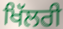
ਖਿੱਲਰੀ